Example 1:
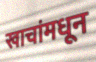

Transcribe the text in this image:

खाचांमधून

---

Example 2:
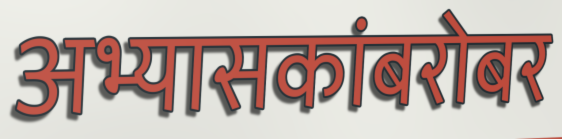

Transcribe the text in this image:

अभ्यासकांबरोबर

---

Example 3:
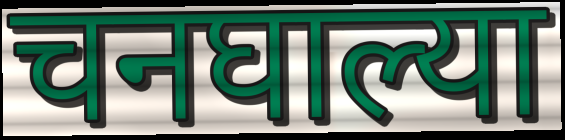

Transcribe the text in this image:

चनघाल्या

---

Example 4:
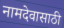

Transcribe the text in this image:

नामदेवासाठी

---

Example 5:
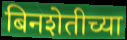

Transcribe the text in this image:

बिनशेतीच्या